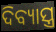
ଦିବ୍ୟାସ୍ତ୍ର